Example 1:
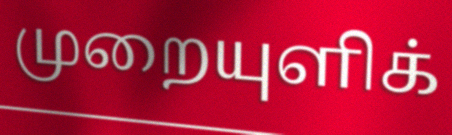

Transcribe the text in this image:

முறையுளிக்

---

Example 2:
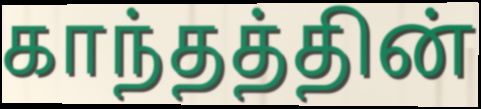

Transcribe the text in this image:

காந்தத்தின்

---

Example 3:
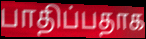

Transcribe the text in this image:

பாதிப்பதாக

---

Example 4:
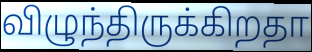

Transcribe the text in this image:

விழுந்திருக்கிறதா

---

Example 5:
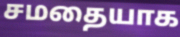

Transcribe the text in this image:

சமதையாக